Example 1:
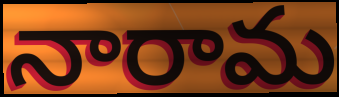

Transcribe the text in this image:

నారామ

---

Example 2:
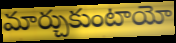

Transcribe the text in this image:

మార్చుకుంటాయో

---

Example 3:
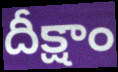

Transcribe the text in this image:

దీక్షాం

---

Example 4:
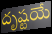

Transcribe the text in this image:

దృష్టయే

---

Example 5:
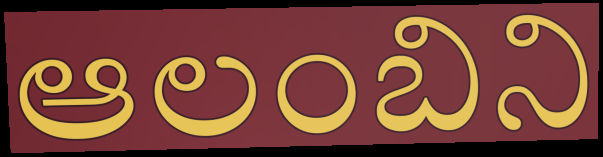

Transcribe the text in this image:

ఆలంబిని